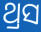
ଥ୍ରସ